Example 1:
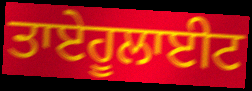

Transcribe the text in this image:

ਤਾਏਹੂਲਾਈਟ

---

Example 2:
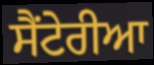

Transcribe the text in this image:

ਸੈਂਟੇਰੀਆ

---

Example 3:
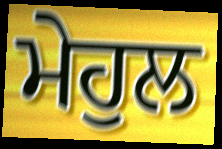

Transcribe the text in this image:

ਮੇਹੁਲ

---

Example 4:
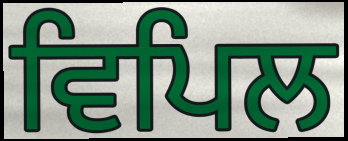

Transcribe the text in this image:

ਵਿਪਿਲ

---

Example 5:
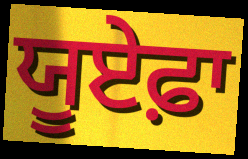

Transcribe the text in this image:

ਯੂਏਫ਼ਾ